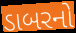
ડાબરનો